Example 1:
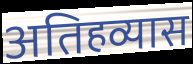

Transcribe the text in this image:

अतिहव्यास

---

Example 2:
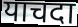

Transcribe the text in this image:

याचदा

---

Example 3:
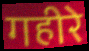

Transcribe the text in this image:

गहीरे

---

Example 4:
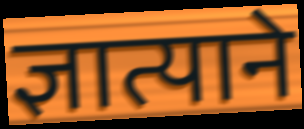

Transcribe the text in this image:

ज्ञात्याने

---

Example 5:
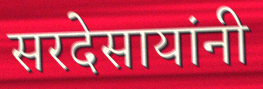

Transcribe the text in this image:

सरदेसायांनी